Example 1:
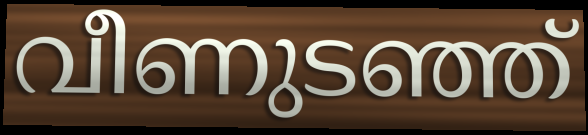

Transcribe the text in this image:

വീണുടഞ്ഞ്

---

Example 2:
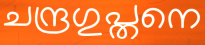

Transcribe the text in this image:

ചന്ദ്രഗുപ്തനെ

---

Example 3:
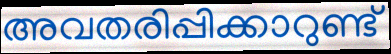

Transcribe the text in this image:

അവതരിപ്പിക്കാറുണ്ട്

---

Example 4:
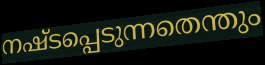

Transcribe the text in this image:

നഷ്ടപ്പെടുന്നതെന്തും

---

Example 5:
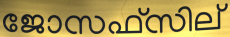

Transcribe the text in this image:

ജോസഫ്സില്